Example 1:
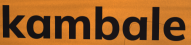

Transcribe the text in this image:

kambale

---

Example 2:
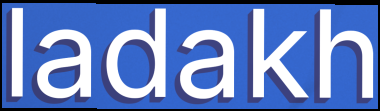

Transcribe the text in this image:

ladakh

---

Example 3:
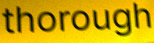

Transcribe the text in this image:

thorough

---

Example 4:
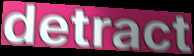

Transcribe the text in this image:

detract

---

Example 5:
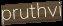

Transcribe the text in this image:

pruthvi